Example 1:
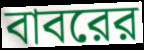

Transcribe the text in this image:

বাবরের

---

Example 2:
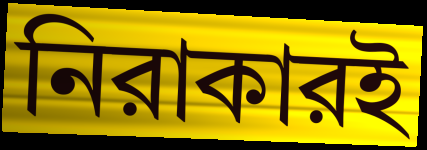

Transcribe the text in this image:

নিরাকারই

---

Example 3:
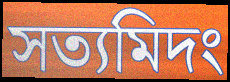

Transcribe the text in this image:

সত্যমিদং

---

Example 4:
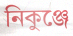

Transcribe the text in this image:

নিকুঞ্জে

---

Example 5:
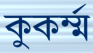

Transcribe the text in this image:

কুকর্ম্ম